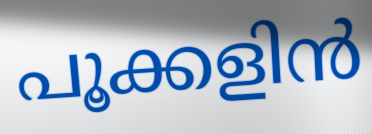
പൂക്കളിൻ